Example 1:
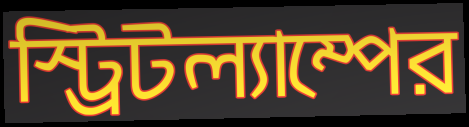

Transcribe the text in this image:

স্ট্রিটল্যাম্পের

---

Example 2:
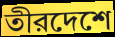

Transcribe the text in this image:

তীরদেশে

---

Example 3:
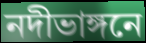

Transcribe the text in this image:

নদীভাঙ্গনে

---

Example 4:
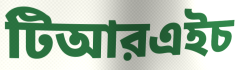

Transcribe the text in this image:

টিআরএইচ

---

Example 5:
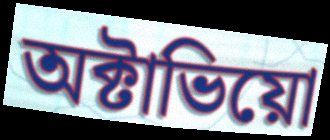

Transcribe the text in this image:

অক্টাভিয়ো